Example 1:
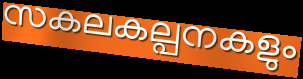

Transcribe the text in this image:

സകലകല്പനകളും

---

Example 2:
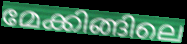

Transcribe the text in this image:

മേക്കിങ്ങിലെ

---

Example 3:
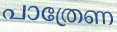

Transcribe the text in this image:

പാത്രേണ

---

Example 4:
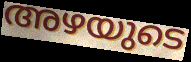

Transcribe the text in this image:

അഴയുടെ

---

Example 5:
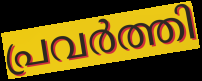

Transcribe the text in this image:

പ്രവർത്തി